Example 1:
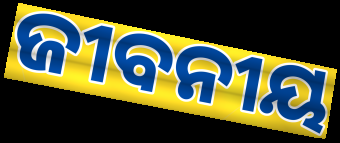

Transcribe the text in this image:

ଜୀବନୀୟ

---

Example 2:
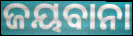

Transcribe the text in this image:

ଜୟବାନା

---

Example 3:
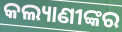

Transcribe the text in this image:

କଲ୍ୟାଣୀଙ୍କର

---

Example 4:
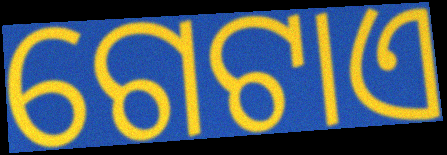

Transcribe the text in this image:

ଗେଟାଏ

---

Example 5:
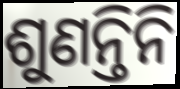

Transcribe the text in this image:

ଶୁଣନ୍ତିନି